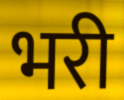
भरी